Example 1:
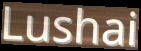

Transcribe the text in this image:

Lushai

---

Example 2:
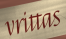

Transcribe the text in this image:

vrittas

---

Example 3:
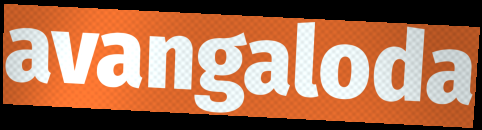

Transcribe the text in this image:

avangaloda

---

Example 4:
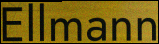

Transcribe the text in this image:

Ellmann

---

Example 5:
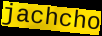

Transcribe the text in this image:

jachcho